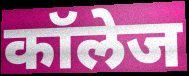
कॉलेज